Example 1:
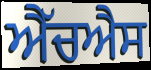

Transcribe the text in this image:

ਐੱਚਐਸ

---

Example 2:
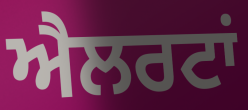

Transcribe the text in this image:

ਐਲਰਟਾਂ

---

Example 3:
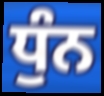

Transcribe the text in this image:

ਧੁੰਨ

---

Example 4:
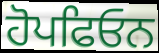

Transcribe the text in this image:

ਹੋਪਫਿਓਨ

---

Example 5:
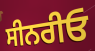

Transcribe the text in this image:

ਸੀਨਰੀਓ